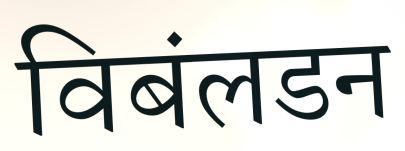
विबंलडन